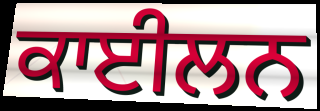
ਕਾਈਲਨ